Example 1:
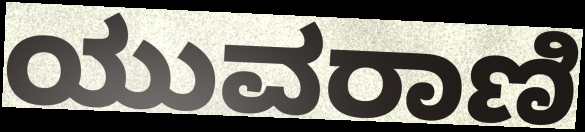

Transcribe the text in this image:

ಯುವರಾಣಿ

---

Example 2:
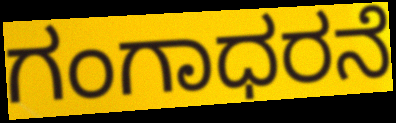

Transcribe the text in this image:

ಗಂಗಾಧರನೆ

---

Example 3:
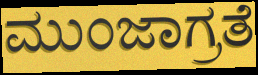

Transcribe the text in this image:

ಮುಂಜಾಗ್ರತೆ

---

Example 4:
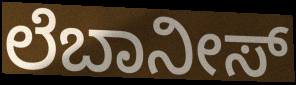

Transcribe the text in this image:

ಲೆಬಾನೀಸ್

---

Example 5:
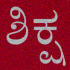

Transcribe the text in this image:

ಶಿಕ್ಷ